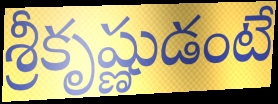
శ్రీకృష్ణుడంటే